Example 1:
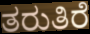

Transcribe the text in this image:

ತರುತಿರೆ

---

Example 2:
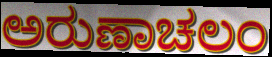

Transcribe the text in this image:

ಅರುಣಾಚಲಂ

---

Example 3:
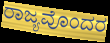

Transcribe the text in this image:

ರಾಜ್ಯವೊಂದರ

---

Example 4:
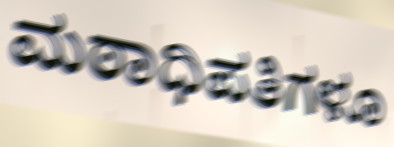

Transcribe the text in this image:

ಮಠಾಧಿಪತಿಗಳೂ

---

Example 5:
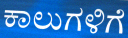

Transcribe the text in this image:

ಕಾಲುಗಳಿಗೆ